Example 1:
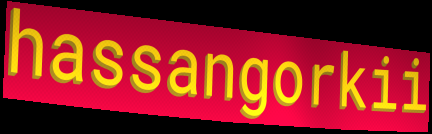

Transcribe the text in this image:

hassangorkii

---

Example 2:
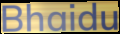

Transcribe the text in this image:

Bhaidu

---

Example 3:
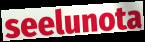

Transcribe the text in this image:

seelunota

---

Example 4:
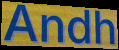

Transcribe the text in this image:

Andh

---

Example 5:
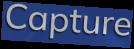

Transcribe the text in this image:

Capture